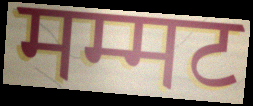
मम्मट